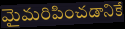
మైమరిపించడానికే